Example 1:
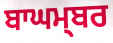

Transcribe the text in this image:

ਬਾਘਮ੍ਬਰ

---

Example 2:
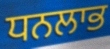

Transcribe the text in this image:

ਧਨਲਾਭ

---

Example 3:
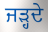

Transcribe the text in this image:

ਜੜ੍ਹਦੇ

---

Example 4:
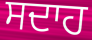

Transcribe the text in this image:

ਸਦਾਹ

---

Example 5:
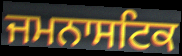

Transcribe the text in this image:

ਜਮਨਾਸਟਿਕ